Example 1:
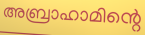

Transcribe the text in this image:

അബ്രാഹാമിന്റെ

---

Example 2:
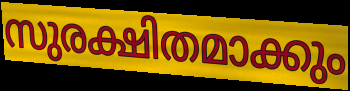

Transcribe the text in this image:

സുരക്ഷിതമാക്കും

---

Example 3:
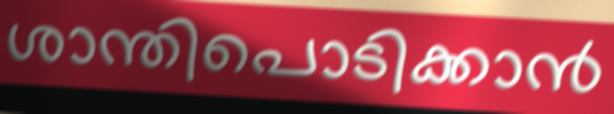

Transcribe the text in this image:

ശാന്തിപൊടിക്കാൻ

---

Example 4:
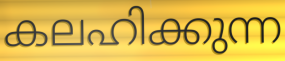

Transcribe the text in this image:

കലഹിക്കുന്ന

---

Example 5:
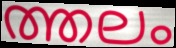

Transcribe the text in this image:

ത്തലം